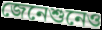
জেনেশুনেও